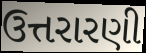
ઉત્તરારણી